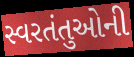
સ્વરતંતુઓની